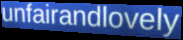
unfairandlovely